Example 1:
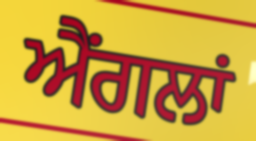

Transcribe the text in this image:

ਐਂਗਲਾਂ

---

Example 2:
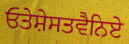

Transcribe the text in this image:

ਓਤੇਸ਼ੇਸਤਵੈਨਿਏ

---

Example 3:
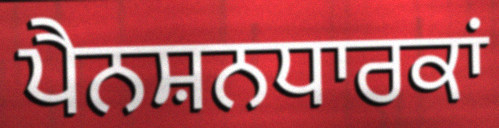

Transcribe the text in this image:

ਪੈਨਸ਼ਨਧਾਰਕਾਂ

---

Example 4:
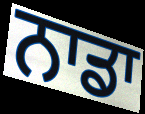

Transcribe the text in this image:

ਨਾਡਾ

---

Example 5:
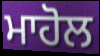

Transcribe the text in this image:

ਮਾਹੋਲ